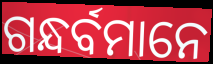
ଗନ୍ଧର୍ବମାନେ